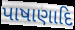
પાષાણાદિ